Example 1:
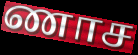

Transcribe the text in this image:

ணாச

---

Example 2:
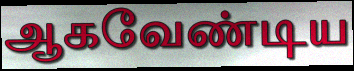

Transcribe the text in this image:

ஆகவேண்டிய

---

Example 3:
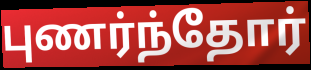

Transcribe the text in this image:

புணர்ந்தோர்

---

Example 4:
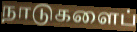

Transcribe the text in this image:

நாடுகளைப்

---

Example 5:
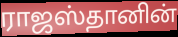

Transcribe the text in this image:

ராஜஸ்தானின்